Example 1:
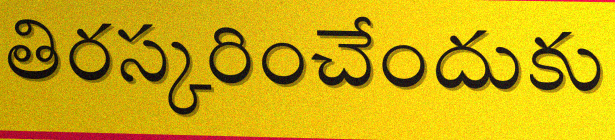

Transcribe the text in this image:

తిరస్కరించేందుకు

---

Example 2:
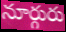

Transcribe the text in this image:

నూర్గురు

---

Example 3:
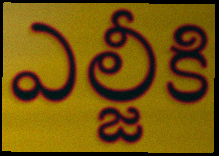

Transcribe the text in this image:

ఎల్జీకి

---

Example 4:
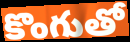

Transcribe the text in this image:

కొంగుతో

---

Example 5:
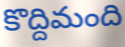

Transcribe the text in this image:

కొద్దిమంది